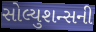
સોલ્યુશન્સની